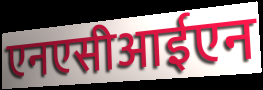
एनएसीआईएन